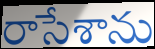
రాసేశాను